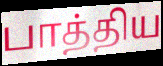
பாத்திய